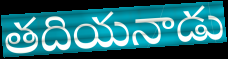
తదియనాడు